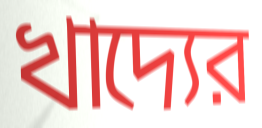
খাদ্যের